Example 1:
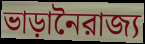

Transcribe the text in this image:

ভাড়ানৈরাজ্য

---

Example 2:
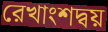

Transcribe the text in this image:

রেখাংশদ্বয়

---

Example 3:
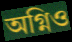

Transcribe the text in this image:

অগ্নিও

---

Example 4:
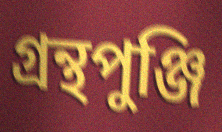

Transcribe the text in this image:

গ্রন্থপুঞ্জি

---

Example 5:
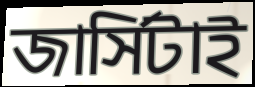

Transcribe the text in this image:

জার্সিটাই